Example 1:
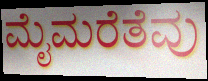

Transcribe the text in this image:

ಮೈಮರೆತೆವು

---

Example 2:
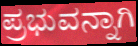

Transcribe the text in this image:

ಪ್ರಭುವನ್ನಾಗಿ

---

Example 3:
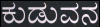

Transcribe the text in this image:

ಕುಡುವನ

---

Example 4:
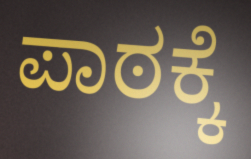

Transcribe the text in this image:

ಪಾಠಕ್ಕೆ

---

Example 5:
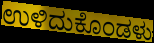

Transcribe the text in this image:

ಉಳಿದುಕೊಂಡಳು